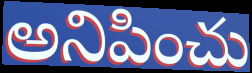
అనిపించు